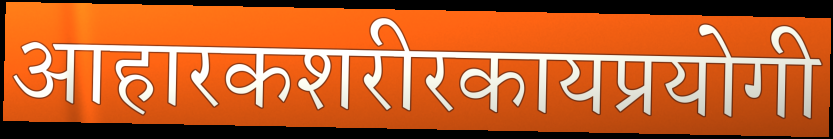
आहारकशरीरकायप्रयोगी